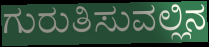
ಗುರುತಿಸುವಲ್ಲಿನ